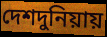
দেশদুনিয়ায়